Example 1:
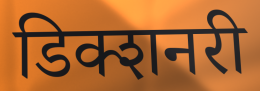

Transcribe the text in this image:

डिक्शनरी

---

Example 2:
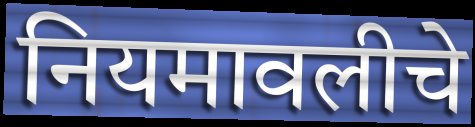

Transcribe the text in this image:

नियमावलीचे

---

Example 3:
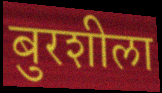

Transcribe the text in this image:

बुरशीला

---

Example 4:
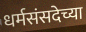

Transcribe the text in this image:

धर्मसंसदेच्या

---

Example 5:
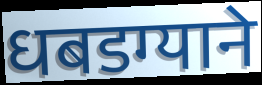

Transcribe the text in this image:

धबडग्याने